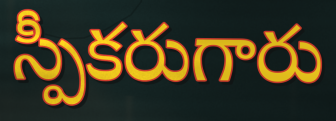
స్పీకరుగారు